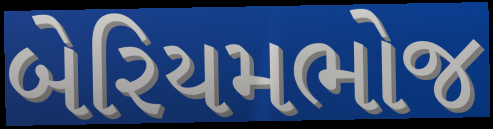
બેરિયમભોજ